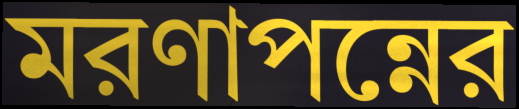
মরণাপন্নের